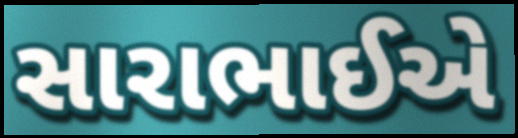
સારાભાઈએ